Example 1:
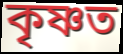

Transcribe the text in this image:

কৃষ্ণত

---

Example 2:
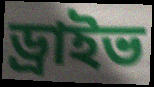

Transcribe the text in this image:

ড্ৰাইভ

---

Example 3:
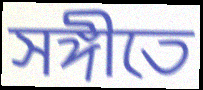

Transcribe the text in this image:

সঙ্গীতে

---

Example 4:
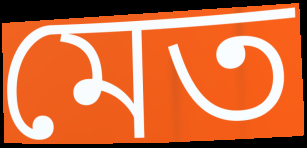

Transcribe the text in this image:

মেত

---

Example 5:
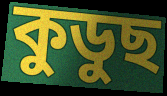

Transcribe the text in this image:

কুডুছ